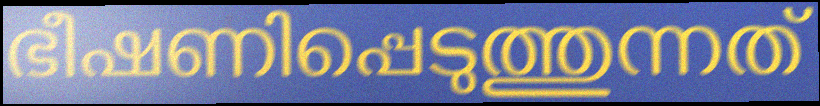
ഭീഷണിപ്പെടുത്തുന്നത്